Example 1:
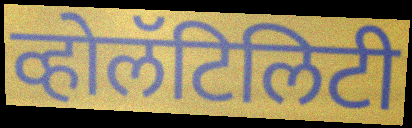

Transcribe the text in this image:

व्होलॅटिलिटी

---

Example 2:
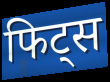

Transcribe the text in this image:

फिट्स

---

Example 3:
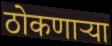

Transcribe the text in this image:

ठोकणाऱ्या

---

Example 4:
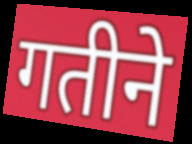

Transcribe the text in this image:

गतीने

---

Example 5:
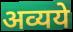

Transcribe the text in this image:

अव्यये